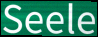
Seele